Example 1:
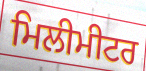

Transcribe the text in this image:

ਮਿਲੀਮੀਟਰ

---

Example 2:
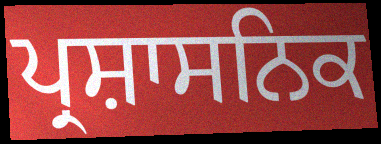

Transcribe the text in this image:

ਪ੍ਰਸ਼ਾਸਨਿਕ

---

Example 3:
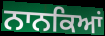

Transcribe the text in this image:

ਨਾਨਕਿਆਂ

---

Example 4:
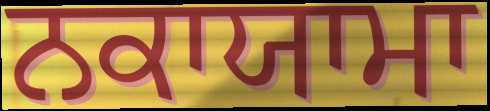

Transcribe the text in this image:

ਨਕਾਯਾਮਾ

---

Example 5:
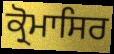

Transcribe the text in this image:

ਕ੍ਰੋਮਾਸਿਰ